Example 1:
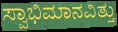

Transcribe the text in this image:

ಸ್ವಾಭಿಮಾನವಿತ್ತು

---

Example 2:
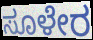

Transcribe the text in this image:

ಸೂಳೇರ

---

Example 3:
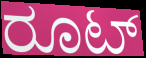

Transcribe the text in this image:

ರೂಟ್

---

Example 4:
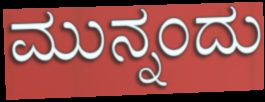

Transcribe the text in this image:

ಮುನ್ನಂದು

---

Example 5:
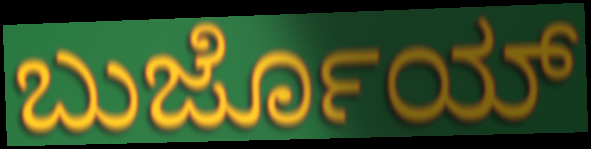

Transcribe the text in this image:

ಬುರ್ಜೊಯ್